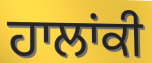
ਹਾਲਾਂਕੀ